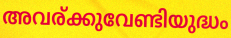
അവര്ക്കുവേണ്ടിയുദ്ധം